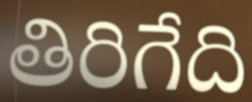
తిరిగేది